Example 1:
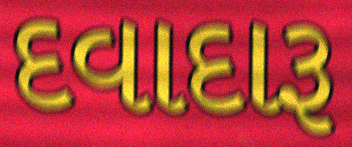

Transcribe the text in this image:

દવાદારૂ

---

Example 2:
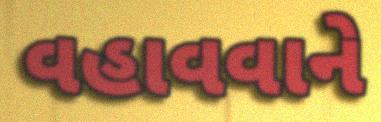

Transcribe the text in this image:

વહાવવાને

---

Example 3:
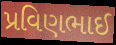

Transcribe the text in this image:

પ્રવિણભાઈ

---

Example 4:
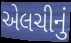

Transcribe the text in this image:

એલચીનું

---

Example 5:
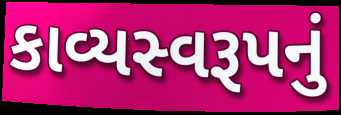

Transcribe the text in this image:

કાવ્યસ્વરૂપનું